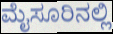
ಮೈಸೂರಿನಲ್ಲಿ